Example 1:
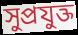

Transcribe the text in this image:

সুপ্রযুক্ত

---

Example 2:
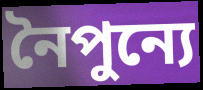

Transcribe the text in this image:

নৈপুন্যে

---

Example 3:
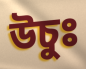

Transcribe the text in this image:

উচুঃ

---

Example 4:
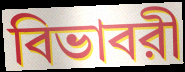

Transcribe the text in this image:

বিভাবরী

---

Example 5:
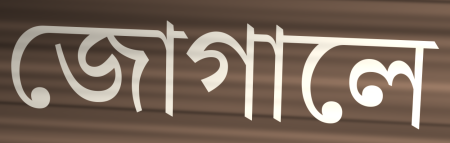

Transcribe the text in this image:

জোগালে